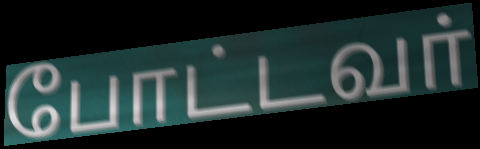
போட்டவர்